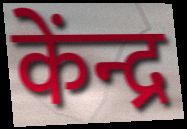
केंन्द्र